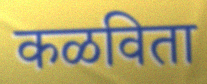
कळविता